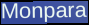
Monpara